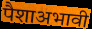
पैशाअभावी